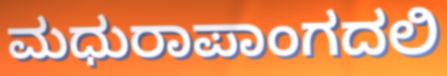
ಮಧುರಾಪಾಂಗದಲಿ